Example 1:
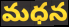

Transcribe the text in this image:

మధన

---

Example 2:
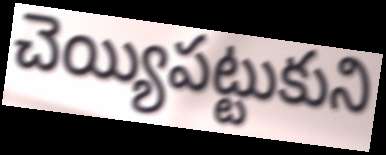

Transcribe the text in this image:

చెయ్యిపట్టుకుని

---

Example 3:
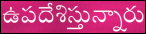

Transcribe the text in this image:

ఉపదేశిస్తున్నారు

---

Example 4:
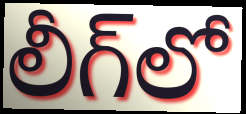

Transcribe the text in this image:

లీగ్‌లో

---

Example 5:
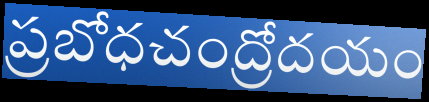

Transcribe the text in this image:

ప్రబోధచంద్రోదయం